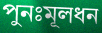
পুনঃমূলধন